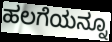
ಹಲಗೆಯನ್ನೂ